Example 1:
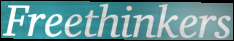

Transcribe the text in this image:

Freethinkers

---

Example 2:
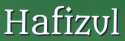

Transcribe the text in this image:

Hafizul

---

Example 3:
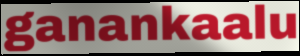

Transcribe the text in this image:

ganankaalu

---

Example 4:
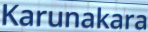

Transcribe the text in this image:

Karunakara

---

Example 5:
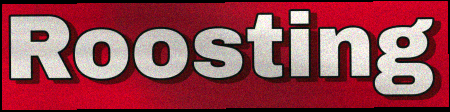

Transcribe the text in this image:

Roosting